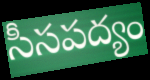
సీసపద్యం